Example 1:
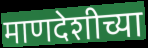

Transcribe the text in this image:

माणदेशीच्या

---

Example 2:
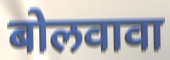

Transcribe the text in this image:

बोलवावा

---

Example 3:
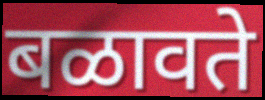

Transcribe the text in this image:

बळावते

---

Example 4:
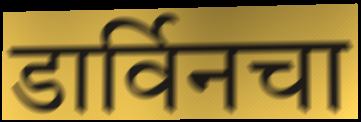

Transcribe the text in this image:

डार्विनचा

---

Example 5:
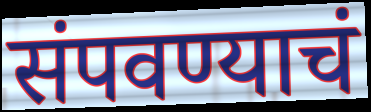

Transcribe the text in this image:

संपवण्याचं